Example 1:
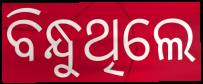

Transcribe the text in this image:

ବିନ୍ଧୁଥିଲେ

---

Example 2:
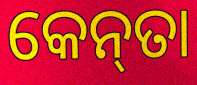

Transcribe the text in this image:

କେନ୍‌ତା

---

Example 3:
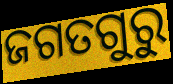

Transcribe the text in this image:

ଜଗତଗୁରୁ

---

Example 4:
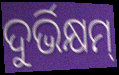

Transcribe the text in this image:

ଦୁର୍ଭିକ୍ଷମ୍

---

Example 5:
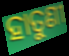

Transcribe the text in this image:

ହାତୁଣୀ